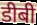
डीबी